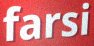
farsi